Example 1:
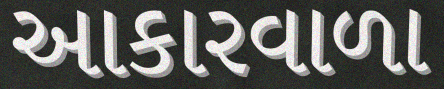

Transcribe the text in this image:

આકારવાળા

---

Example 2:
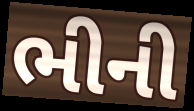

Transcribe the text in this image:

ભીની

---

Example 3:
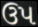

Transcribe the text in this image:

ઉપ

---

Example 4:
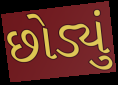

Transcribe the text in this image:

છોડ્યું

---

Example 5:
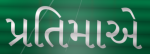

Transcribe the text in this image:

પ્રતિમાએ